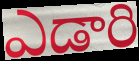
ఎడారి